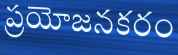
ప్రయోజనకరం